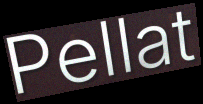
Pellat